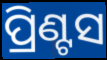
ପ୍ରିଣ୍ଟସ